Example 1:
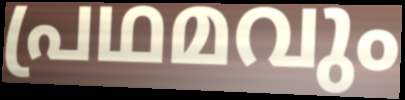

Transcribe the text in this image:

പ്രഥമവും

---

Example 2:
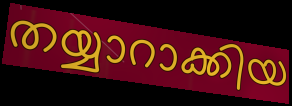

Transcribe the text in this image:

തയ്യാറാക്കിയ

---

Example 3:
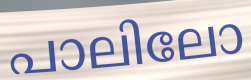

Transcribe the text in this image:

പാലിലോ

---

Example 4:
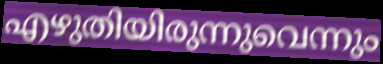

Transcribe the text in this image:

എഴുതിയിരുന്നുവെന്നും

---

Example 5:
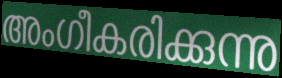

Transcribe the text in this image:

അംഗീകരിക്കുന്നു